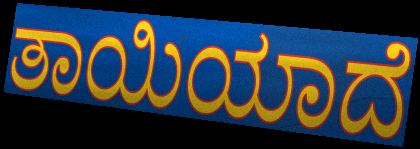
ತಾಯಿಯಾದೆ